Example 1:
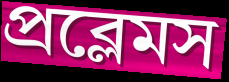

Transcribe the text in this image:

প্রব্লেমস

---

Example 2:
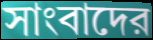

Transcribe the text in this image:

সাংবাদের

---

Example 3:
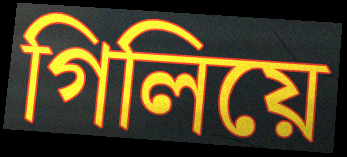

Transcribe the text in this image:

গিলিয়ে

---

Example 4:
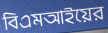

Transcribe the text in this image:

বিএমআইয়ের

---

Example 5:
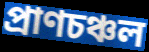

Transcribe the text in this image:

প্রাণচঞ্চল